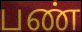
பண்